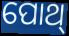
ପୋଥ୍